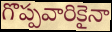
గొప్పవారికైనా